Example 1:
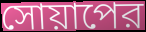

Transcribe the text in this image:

সোয়াপের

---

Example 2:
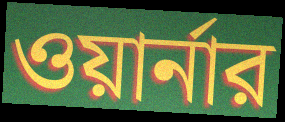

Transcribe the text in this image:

ওয়ার্নার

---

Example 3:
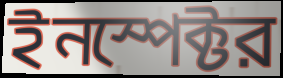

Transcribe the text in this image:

ইনস্পেক্টর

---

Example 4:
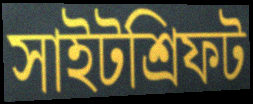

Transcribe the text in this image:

সাইটশ্রিফট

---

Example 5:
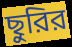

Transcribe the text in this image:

ছুরির